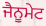
ਜੈਨੂਮੇਟ